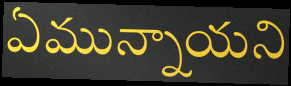
ఏమున్నాయని